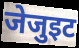
जेजुइट